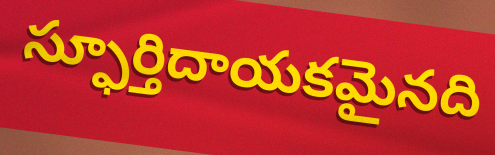
స్ఫూర్తిదాయకమైనది